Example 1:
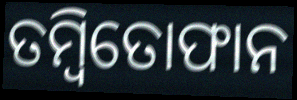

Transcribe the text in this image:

ତମ୍ବିତୋଫାନ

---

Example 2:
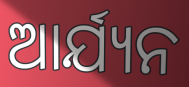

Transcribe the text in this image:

ଆର୍ଯ୍ୟନ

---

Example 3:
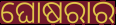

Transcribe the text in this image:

ଘୋଷରାର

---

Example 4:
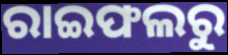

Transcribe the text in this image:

ରାଇଫଲରୁ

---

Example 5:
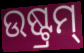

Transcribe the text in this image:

ଉଷ୍ଟ୍ରମ୍